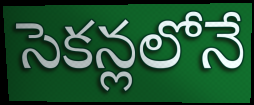
సెకన్లలోనే